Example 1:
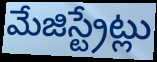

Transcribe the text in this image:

మేజిస్ట్రేట్లు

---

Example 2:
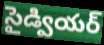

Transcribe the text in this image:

సైడ్వియర్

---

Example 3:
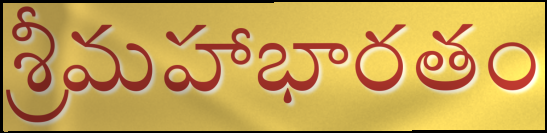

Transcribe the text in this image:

శ్రీమహాభారతం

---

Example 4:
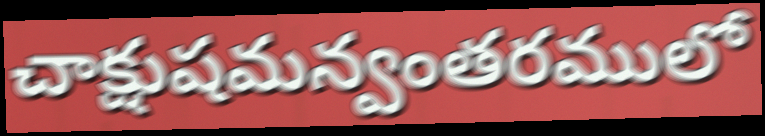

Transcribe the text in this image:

చాక్షుషమన్వంతరములో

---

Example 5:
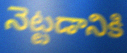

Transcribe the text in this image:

నెట్టడానికి